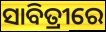
ସାବିତ୍ରୀରେ